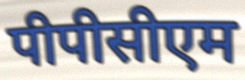
पीपीसीएम